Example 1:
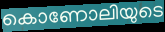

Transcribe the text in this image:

കൊണോലിയുടെ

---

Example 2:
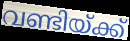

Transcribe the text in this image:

വണ്ടിയ്ക്ക്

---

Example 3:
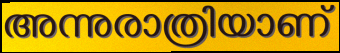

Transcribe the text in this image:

അന്നുരാത്രിയാണ്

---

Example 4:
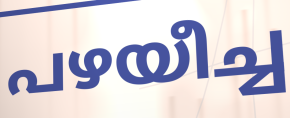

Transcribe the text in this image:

പഴയീച്ച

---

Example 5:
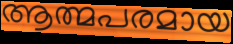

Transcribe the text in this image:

ആത്മപരമായ